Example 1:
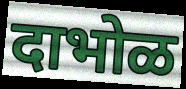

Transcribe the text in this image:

दाभोळ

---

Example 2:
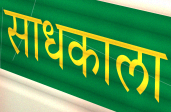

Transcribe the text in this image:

साधकाला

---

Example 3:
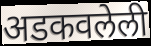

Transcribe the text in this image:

अडकवलेली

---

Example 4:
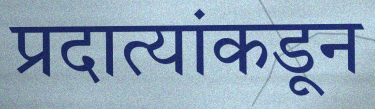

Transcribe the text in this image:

प्रदात्यांकडून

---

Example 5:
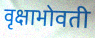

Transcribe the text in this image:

वृक्षाभोवती